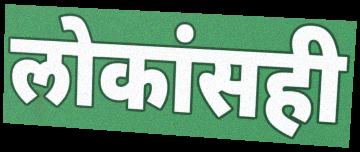
लोकांसही